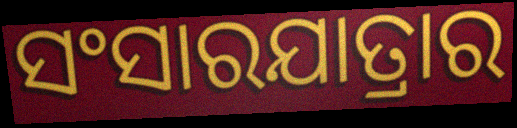
ସଂସାରଯାତ୍ରାର